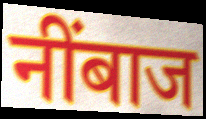
नींबाज